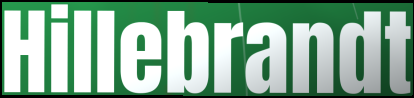
Hillebrandt